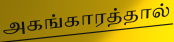
அகங்காரத்தால்